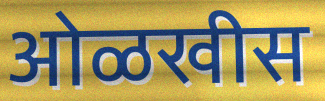
ओळखीस